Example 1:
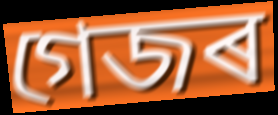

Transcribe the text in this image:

গেজৰ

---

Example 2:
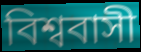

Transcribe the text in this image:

বিশ্ববাসী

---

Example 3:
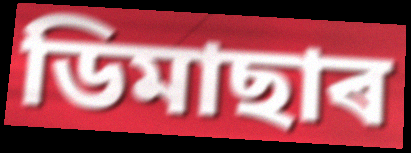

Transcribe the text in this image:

ডিমাছাৰ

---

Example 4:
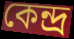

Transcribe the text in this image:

কেন্দ্ৰ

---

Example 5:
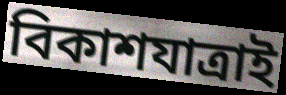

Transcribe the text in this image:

বিকাশযাত্ৰাই